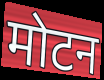
मोटन